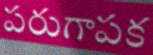
పరుగాపక